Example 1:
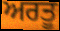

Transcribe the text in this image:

ਅਰਤੂ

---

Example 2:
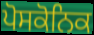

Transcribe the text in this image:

ਪੋਸਕੋਨਿਕ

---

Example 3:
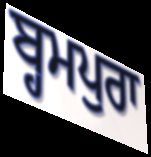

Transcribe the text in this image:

ਬ੍ਹਮਪੁਰਾ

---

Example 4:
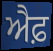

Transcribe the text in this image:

ਐਫ਼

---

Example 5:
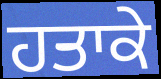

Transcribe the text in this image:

ਹਤਾਕੇ